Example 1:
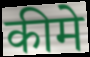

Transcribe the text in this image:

कीमे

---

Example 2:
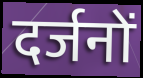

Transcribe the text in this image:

दर्जनों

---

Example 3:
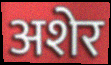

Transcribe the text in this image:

अशेर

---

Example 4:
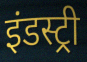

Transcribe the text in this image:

इंडस्ट्री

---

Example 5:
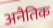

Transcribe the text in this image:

अनैतिक